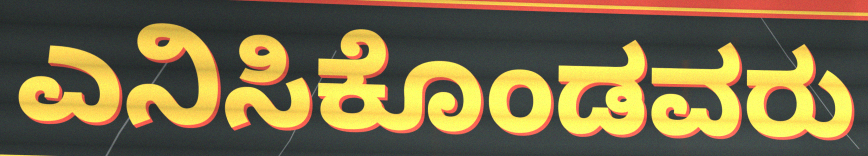
ಎನಿಸಿಕೊಂಡವರು